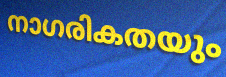
നാഗരികതയും